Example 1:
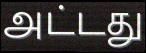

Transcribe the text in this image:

அட்டது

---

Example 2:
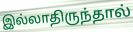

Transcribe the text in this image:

இல்லாதிருந்தால்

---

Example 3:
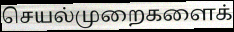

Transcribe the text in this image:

செயல்முறைகளைக்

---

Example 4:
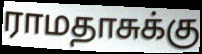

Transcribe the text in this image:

ராமதாசுக்கு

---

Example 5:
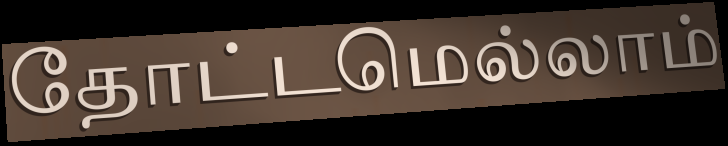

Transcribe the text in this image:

தோட்டமெல்லாம்